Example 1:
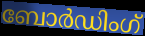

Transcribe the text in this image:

ബോർഡിംഗ്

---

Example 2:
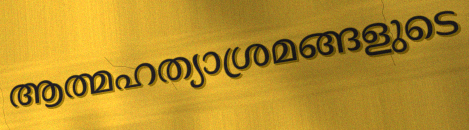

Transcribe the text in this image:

ആത്മഹത്യാശ്രമങ്ങളുടെ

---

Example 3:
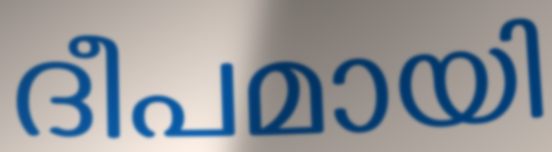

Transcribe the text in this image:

ദീപമായി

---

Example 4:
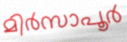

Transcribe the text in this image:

മിർസാപൂർ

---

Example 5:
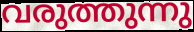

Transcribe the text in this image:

വരുത്തുന്നു